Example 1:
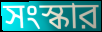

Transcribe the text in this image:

সংস্কার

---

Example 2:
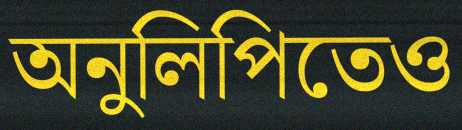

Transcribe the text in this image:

অনুলিপিতেও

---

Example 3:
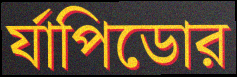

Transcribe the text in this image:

র্যাপিডোর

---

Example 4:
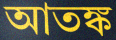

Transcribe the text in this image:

আতঙ্ক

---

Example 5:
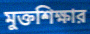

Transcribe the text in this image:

মুক্তশিক্ষার